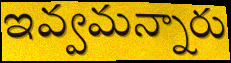
ఇవ్వమన్నారు